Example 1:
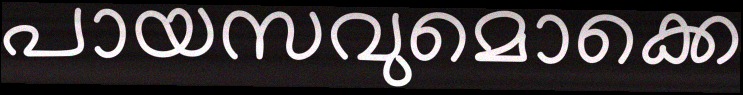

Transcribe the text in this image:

പായസവുമൊക്കെ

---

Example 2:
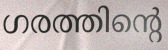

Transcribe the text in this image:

ഗരത്തിന്റെ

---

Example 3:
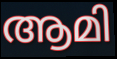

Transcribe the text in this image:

ആമി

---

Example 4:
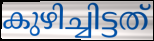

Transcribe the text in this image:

കുഴിച്ചിട്ടത്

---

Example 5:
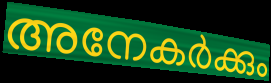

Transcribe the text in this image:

അനേകർക്കും